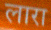
लारा